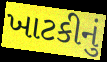
ખાટકીનું